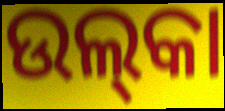
ଉଲ୍‍କା